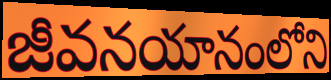
జీవనయానంలోని